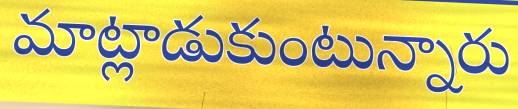
మాట్లాడుకుంటున్నారు